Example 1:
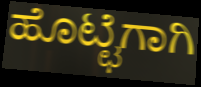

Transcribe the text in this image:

ಹೊಟ್ಟೆಗಾಗಿ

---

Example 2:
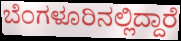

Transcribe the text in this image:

ಬೆಂಗಳೂರಿನಲ್ಲಿದ್ದಾರೆ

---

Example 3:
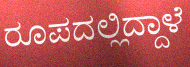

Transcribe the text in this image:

ರೂಪದಲ್ಲಿದ್ದಾಳೆ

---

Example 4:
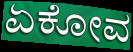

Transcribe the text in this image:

ಏಕೋವ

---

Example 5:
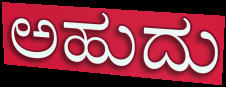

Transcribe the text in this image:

ಅಹುದು